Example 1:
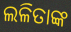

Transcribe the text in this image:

ଲଳିତାଙ୍କ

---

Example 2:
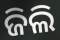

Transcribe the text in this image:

ଜିଲି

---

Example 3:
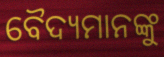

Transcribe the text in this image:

ବୈଦ୍ୟମାନଙ୍କୁ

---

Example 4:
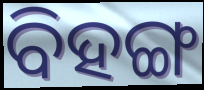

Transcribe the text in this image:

ବିହଙ୍ଗ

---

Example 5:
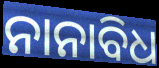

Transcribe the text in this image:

ନାନାବିଧ